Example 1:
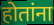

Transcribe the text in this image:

होतांना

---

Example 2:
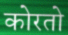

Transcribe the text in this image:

कोरतो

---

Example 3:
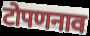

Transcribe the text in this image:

टोपणनाव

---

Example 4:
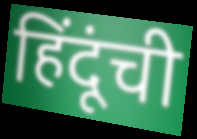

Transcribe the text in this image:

हिंदूंची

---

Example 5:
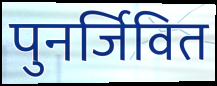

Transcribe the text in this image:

पुनर्जिवित